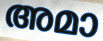
അമാ